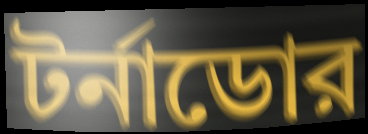
টর্নাডোর